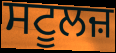
ਸਟੂਲਜ਼